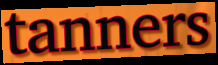
tanners